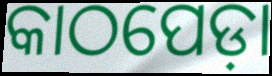
କାଠପେଡ଼ା